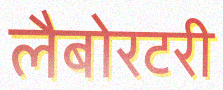
लैबोरटरी